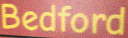
Bedford